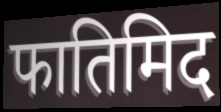
फातिमिद